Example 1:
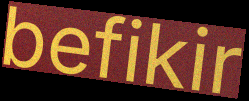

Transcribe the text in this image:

befikir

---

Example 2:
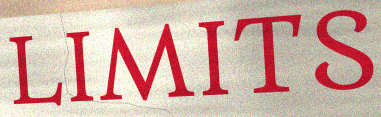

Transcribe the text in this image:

LIMITS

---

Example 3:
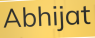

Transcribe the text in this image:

Abhijat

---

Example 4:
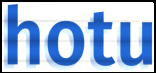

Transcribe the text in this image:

hotu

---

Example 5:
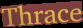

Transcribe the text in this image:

Thrace